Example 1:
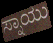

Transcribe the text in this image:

ಸ್ನಾಯು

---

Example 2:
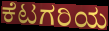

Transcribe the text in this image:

ಕೆಟಗರಿಯ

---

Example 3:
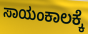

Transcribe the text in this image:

ಸಾಯಂಕಾಲಕ್ಕೆ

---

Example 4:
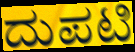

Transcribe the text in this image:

ದುಪಟಿ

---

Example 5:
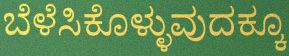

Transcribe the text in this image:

ಬೆಳೆಸಿಕೊಳ್ಳುವುದಕ್ಕೂ